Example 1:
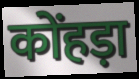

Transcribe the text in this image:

कोंहड़ा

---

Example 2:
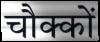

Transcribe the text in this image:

चौक्कों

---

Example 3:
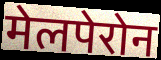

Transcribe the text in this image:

मेलपेरोन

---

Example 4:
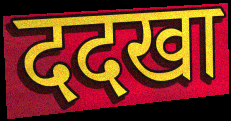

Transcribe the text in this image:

ददखा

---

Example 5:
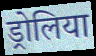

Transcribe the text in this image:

ड्रोलिया